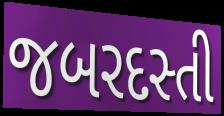
જબરદસ્તી